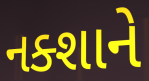
નક્શાને